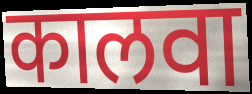
कालवा